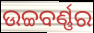
ଉଚ୍ଚବର୍ଣ୍ଣର